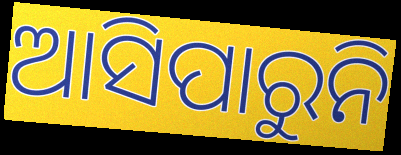
ଆସିପାରୁନି